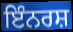
ਇੰਨਰਸ਼